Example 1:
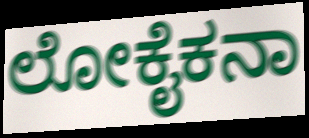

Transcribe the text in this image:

ಲೋಕೈಕನಾ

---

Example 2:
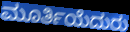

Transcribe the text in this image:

ಮೂರ್ತಿಯೆದುರು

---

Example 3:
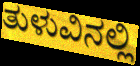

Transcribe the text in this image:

ತುಳುವಿನಲ್ಲಿ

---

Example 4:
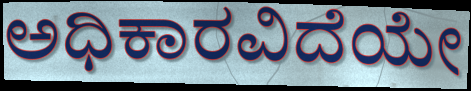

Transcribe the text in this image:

ಅಧಿಕಾರವಿದೆಯೇ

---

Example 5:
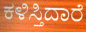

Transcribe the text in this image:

ಕಳಿಸ್ತಿದಾರೆ